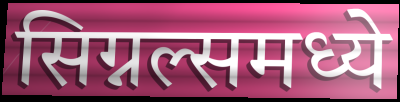
सिग्नल्समध्ये